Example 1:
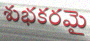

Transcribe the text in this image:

శుభకరమై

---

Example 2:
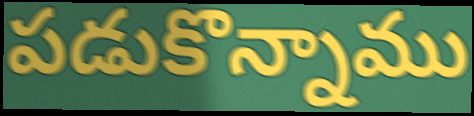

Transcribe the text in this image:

పడుకొన్నాము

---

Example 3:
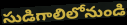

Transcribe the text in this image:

సుడిగాలిలోనుండి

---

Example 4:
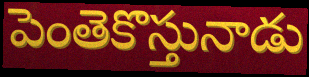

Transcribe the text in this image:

పెంతెకొస్తునాడు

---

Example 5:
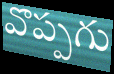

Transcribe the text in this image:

వొప్పగు